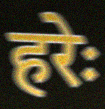
हरेः